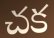
చక